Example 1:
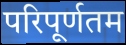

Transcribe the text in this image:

परिपूर्णतम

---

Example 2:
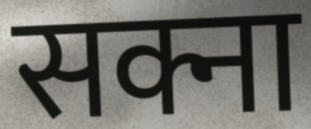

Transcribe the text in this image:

सक्ना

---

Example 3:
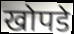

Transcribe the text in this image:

खोपडे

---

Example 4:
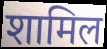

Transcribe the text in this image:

शामिल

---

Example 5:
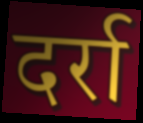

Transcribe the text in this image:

दर्रा